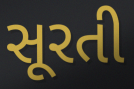
સૂરતી